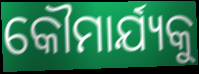
କୌମାର୍ଯ୍ୟକୁ